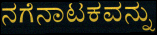
ನಗೆನಾಟಕವನ್ನು